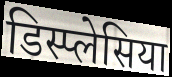
डिस्प्लेसिया